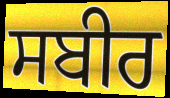
ਸਬੀਰ